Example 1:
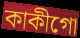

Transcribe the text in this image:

কাকীগো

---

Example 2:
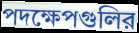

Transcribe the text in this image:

পদক্ষেপগুলির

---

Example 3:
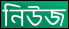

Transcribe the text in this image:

নিউজ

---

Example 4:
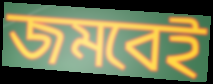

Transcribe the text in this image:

জমবেই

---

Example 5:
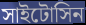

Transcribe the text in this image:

সাইটোসিন